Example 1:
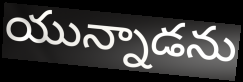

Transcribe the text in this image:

యున్నాడను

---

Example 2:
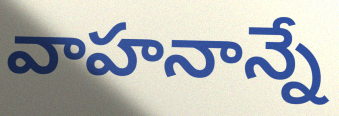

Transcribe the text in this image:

వాహనాన్నే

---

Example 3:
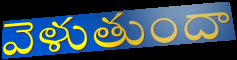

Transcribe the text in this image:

వెళుతుందా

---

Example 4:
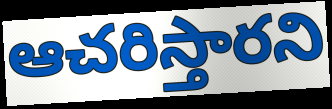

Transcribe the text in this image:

ఆచరిస్తారని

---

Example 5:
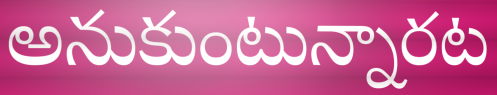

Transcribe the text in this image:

అనుకుంటున్నారట